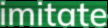
imitate